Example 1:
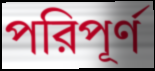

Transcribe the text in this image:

পরিপূর্ণ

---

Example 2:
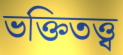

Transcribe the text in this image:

ভক্তিতত্ত্ব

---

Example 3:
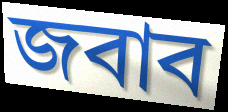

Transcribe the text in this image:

জবাব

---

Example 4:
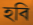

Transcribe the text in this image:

হবি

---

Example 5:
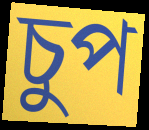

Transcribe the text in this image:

চুপ